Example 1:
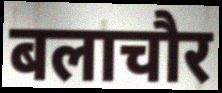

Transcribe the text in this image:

बलाचौर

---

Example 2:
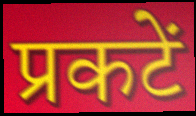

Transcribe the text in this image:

प्रकटें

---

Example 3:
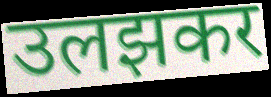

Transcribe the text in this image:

उलझकर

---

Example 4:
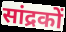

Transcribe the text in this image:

सांद्रकों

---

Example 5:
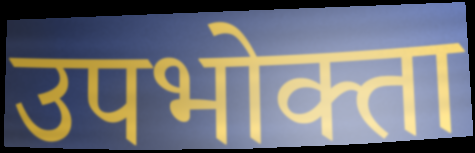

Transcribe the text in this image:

उपभोक्ता